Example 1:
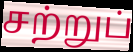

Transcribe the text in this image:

சற்றுப்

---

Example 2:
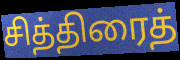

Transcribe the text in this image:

சித்திரைத்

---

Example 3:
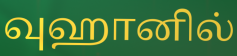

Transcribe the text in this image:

வுஹானில்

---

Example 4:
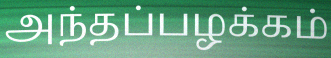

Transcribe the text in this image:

அந்தப்பழக்கம்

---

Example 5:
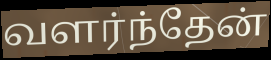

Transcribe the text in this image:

வளர்ந்தேன்